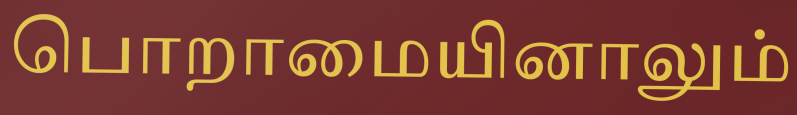
பொறாமையினாலும்